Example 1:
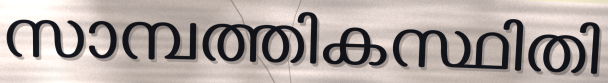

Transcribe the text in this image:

സാമ്പത്തികസ്ഥിതി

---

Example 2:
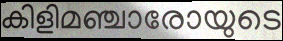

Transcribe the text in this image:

കിളിമഞ്ചാരോയുടെ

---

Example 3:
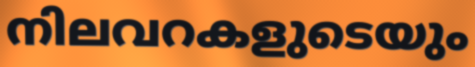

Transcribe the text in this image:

നിലവറകളുടെയും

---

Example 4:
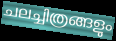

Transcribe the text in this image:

ചലച്ചിത്രങ്ങളും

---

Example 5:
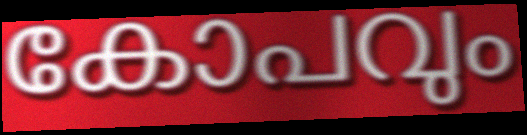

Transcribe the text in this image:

കോപവും